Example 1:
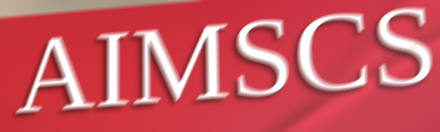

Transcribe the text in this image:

AIMSCS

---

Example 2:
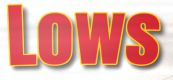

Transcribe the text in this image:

Lows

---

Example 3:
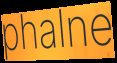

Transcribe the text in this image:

phalne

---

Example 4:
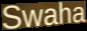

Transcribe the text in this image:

Swaha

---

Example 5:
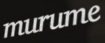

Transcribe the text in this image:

murume